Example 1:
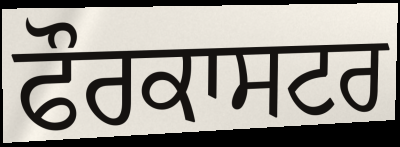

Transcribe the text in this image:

ਫੌਰਕਾਸਟਰ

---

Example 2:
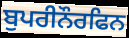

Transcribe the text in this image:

ਬੁਪਰੀਨੌਰਫਿਨ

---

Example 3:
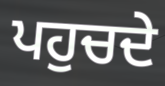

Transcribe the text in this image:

ਪਹੁਚਦੇ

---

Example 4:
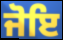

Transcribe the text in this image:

ਜੋਇ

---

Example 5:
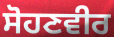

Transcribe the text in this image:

ਸੋਹਣਵੀਰ